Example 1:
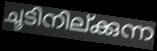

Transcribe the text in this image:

ചൂടിനില്ക്കുന്ന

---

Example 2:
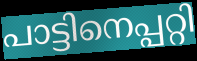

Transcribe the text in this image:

പാട്ടിനെപ്പറ്റി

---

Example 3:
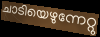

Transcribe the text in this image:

ചാടിയെഴുന്നേറ്റു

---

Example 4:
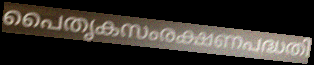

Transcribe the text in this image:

പൈതൃകസംരക്ഷണപദ്ധതി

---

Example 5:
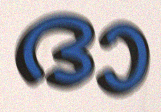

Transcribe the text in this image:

ദാ